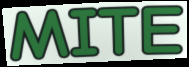
MITE